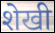
शेखी